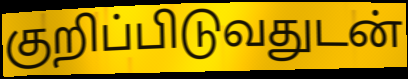
குறிப்பிடுவதுடன்